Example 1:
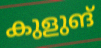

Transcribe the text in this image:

കുളുങ്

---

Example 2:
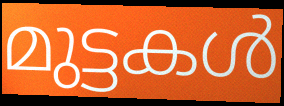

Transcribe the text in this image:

മുട്ടകൾ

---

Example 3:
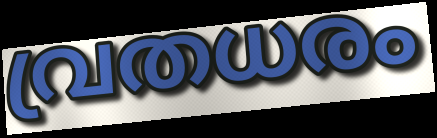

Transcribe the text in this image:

വ്രതധരം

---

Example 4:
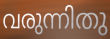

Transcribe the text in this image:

വരുന്നിതു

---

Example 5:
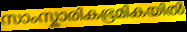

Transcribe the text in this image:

സാംസ്കാരികഭൂമികയിൽ